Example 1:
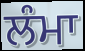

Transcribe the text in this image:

ਲੰਮਾ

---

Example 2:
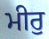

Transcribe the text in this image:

ਮੀਰੁ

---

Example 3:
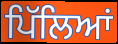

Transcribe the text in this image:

ਪਿੱਲਿਆਂ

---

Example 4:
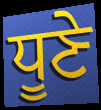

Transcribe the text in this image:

ਧੂਣੇ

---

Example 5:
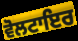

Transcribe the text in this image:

ਵੋਲਟਾਇਰ